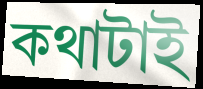
কথাটাই